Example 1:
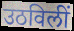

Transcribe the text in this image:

उठविलीं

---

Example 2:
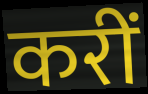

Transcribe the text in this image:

करीं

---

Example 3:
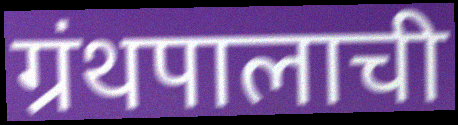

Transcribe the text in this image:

ग्रंथपालाची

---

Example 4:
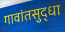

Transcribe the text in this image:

गावांतसुद्धा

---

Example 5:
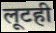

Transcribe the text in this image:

लूटही